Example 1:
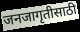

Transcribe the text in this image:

जनजागृतीसाठी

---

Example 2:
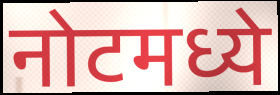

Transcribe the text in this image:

नोटमध्ये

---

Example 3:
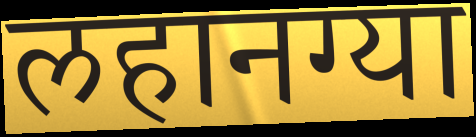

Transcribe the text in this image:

लहानग्या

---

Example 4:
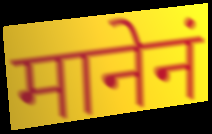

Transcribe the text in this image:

मानेनं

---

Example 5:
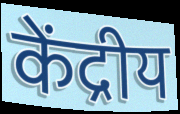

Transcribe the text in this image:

केंद्रीय